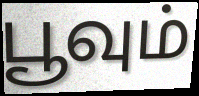
பூவும்